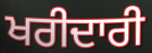
ਖਰੀਦਾਰੀ